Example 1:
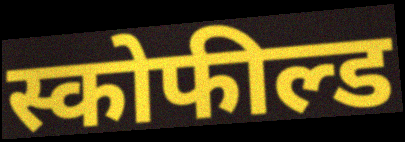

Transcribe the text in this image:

स्कोफील्ड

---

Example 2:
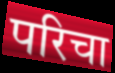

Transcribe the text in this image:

परिचा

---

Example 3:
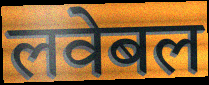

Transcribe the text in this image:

लवेबल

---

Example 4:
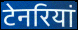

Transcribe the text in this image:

टेनरियां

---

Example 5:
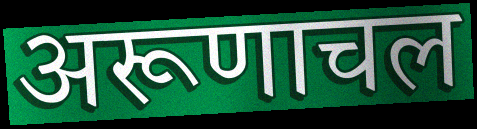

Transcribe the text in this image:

अरूणाचल